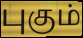
புகும்